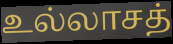
உல்லாசத்